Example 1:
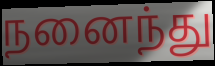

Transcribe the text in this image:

நனைந்து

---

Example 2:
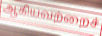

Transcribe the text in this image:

ஆகியவற்றைச்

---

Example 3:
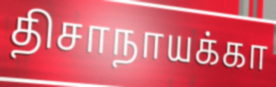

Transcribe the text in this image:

திசாநாயக்கா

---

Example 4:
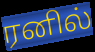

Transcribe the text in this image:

ரனில்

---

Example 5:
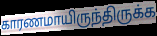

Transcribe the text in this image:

காரணமாயிருந்திருக்க